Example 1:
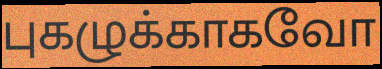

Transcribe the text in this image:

புகழுக்காகவோ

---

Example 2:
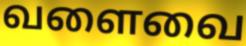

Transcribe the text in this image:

வளைவை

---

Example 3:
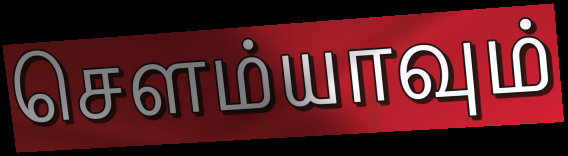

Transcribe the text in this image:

சௌம்யாவும்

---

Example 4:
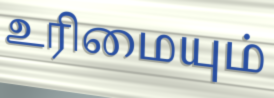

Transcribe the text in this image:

உரிமையும்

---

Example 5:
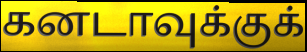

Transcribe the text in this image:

கனடாவுக்குக்